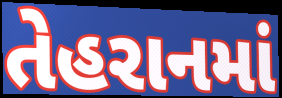
તેહરાનમાં